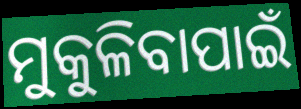
ମୁକୁଳିବାପାଇଁ